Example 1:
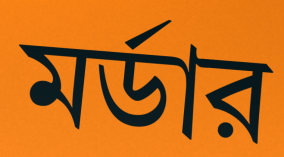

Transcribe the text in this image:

মর্ডার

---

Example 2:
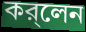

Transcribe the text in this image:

কর্‌লেন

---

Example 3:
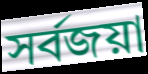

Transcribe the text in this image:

সর্বজয়া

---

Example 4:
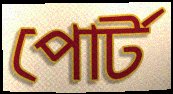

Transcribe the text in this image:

পোর্ট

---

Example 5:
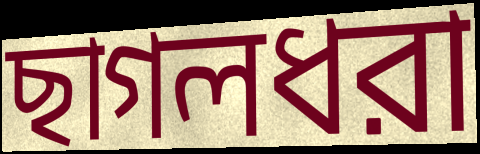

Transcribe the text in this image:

ছাগলধরা